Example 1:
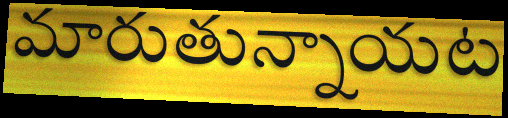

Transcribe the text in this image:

మారుతున్నాయట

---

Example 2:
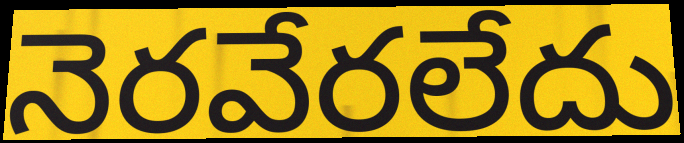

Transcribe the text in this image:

నెరవేరలేదు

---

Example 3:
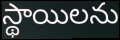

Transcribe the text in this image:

స్థాయిలను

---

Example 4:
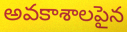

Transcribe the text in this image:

అవకాశాలపైన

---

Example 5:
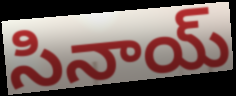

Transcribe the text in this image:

సినాయ్